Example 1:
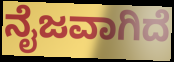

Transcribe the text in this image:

ನೈಜವಾಗಿದೆ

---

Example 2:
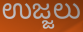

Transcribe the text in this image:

ಉಜ್ಜಲು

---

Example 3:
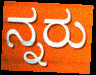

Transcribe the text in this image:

ನ್ನರು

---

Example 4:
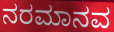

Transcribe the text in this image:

ನರಮಾನವ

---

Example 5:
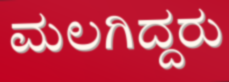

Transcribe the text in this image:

ಮಲಗಿದ್ದರು